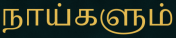
நாய்களும்